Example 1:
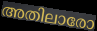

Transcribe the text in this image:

അതിലാരോ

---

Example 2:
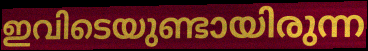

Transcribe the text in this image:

ഇവിടെയുണ്ടായിരുന്ന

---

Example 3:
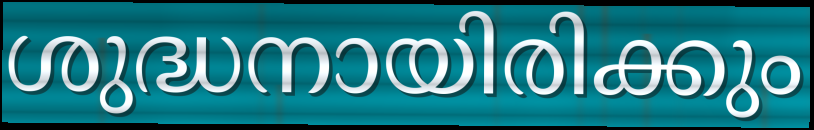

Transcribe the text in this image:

ശുദ്ധനായിരിക്കും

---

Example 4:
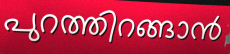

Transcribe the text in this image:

പുറത്തിറങ്ങാൻ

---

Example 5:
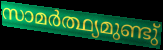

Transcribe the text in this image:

സാമർത്ഥ്യമുണ്ടു്